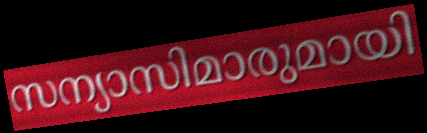
സന്യാസിമാരുമായി